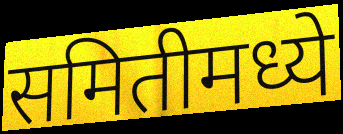
समितीमध्ये